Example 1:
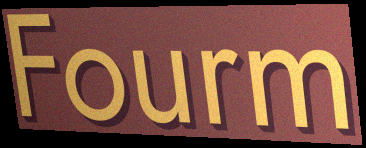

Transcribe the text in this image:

Fourm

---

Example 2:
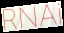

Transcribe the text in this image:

RNAi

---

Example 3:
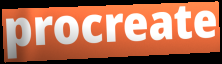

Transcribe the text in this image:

procreate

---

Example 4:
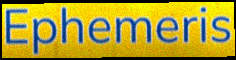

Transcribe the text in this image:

Ephemeris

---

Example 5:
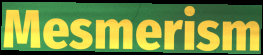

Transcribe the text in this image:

Mesmerism